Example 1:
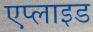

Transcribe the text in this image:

एप्लाइड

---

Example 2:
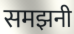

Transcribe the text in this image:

समझनी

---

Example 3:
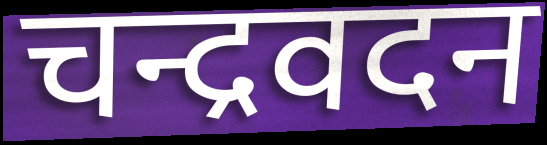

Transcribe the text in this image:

चन्द्रवदन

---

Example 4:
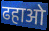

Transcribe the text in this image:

ढहाओ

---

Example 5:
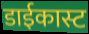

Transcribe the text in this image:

डाईकास्ट